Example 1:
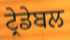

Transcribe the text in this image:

ਟ੍ਰੇਡੇਬਲ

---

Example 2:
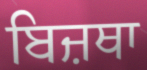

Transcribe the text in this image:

ਬਿਜ਼ਥਾ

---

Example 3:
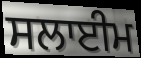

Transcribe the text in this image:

ਸਲਾਈਮ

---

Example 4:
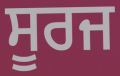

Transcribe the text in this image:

ਸੂਰਜ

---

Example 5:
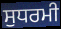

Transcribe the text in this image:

ਸੁਧਰਮੀ